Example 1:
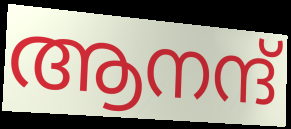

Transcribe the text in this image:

ആനന്ദ്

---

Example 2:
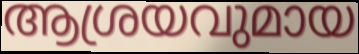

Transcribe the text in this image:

ആശ്രയവുമായ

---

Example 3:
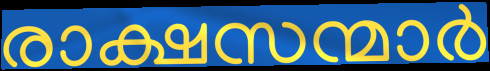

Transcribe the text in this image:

രാക്ഷസന്മാർ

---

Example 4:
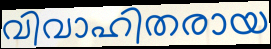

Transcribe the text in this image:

വിവാഹിതരായ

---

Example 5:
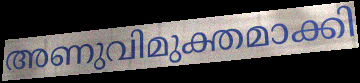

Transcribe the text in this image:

അണുവിമുക്തമാക്കി